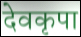
देवकृपा